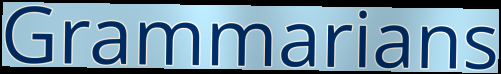
Grammarians